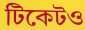
টিকেটও